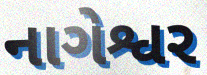
નાગેશ્વર